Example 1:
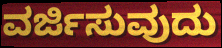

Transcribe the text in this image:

ವರ್ಜಿಸುವುದು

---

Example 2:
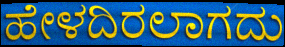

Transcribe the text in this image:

ಹೇಳದಿರಲಾಗದು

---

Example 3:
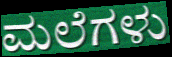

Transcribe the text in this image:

ಮಲೆಗಳು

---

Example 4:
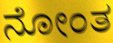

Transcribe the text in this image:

ನೋಂತ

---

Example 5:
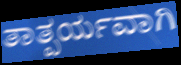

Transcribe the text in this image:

ತಾತ್ಪರ್ಯವಾಗಿ